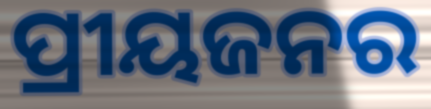
ପ୍ରୀୟଜନର